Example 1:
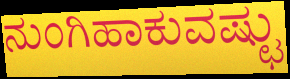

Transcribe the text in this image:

ನುಂಗಿಹಾಕುವಷ್ಟು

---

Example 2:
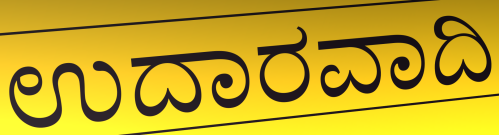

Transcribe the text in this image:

ಉದಾರವಾದಿ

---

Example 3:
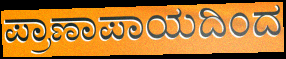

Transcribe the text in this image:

ಪ್ರಾಣಾಪಾಯದಿಂದ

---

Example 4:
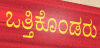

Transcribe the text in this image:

ಒತ್ತಿಕೊಂಡರು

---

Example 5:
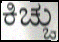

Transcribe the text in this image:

ಕಿಚ್ಚು